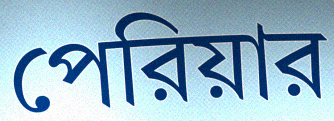
পেরিয়ার